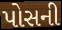
પોસની